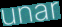
unar